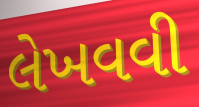
લેખવવી